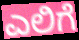
ಎಲಿಗೆ